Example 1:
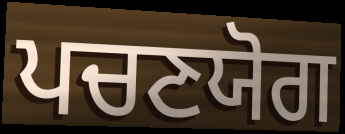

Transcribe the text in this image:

ਪਚਣਯੋਗ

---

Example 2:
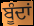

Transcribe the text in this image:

ਬੂੰਦਾਂ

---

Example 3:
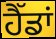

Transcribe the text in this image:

ਹੈੱਡਾਂ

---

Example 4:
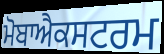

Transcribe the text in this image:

ਮੋਬਾਐਕਸਟਰਮ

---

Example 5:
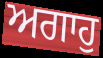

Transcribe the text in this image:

ਅਗਾਹੁ